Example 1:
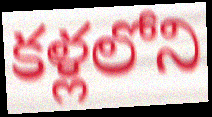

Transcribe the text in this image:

కళ్లలోని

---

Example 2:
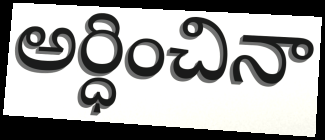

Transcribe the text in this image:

అర్ధించినా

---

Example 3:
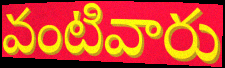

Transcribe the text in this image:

వంటివారు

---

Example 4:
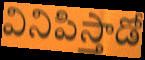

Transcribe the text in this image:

వినిపిస్తాడో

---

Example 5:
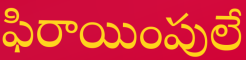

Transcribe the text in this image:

ఫిరాయింపులే